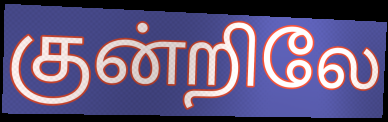
குன்றிலே